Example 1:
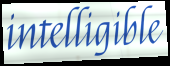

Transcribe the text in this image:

intelligible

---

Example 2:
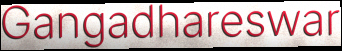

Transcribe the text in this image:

Gangadhareswar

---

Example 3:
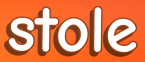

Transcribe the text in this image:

stole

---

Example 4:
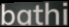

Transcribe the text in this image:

bathi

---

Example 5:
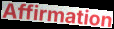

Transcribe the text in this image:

Affirmation